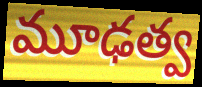
మూఢత్వ